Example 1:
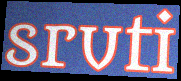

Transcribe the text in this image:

sruti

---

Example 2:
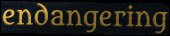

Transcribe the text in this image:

endangering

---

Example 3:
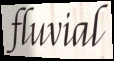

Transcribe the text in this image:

fluvial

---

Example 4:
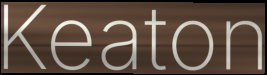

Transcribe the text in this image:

Keaton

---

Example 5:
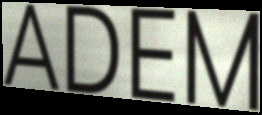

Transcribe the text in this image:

ADEM